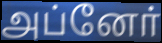
அப்னேர்